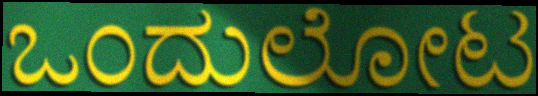
ಒಂದುಲೋಟ